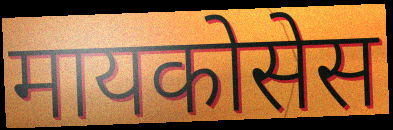
मायकोसेस